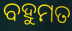
ବହୁମତ